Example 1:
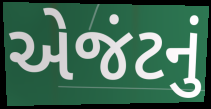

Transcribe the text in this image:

એજંટનું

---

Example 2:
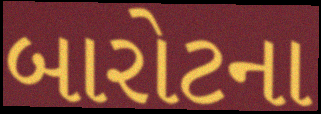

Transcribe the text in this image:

બારોટના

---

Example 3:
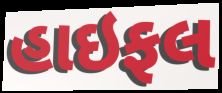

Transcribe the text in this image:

હાઇફલ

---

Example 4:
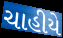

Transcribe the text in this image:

ચાહીયે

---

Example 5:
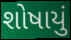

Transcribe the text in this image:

શોષાયું